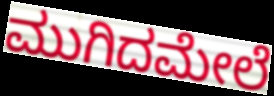
ಮುಗಿದಮೇಲೆ